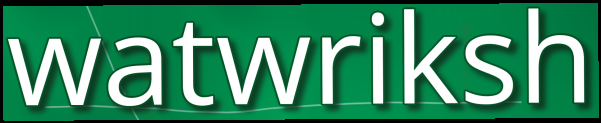
watwriksh